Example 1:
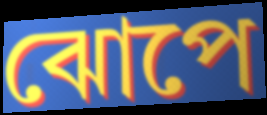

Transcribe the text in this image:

ঝোপে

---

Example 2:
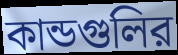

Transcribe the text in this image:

কান্ডগুলির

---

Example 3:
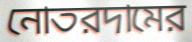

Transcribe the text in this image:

নোতরদামের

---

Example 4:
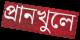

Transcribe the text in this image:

প্রানখুলে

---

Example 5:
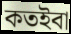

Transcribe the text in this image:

কতইবা